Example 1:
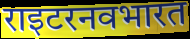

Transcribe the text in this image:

राइटरनवभारत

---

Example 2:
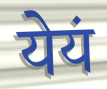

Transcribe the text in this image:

येयं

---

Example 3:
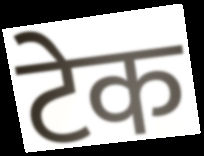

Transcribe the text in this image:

टेक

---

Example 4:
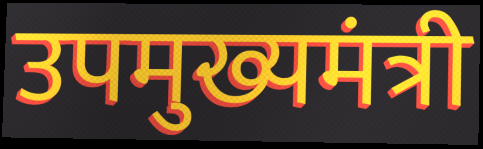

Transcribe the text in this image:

उपमुख्यमंत्री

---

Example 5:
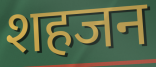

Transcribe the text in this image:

शहजन